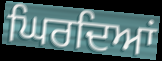
ਘਿਰਦਿਆਂ